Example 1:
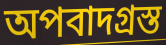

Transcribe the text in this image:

অপবাদগ্রস্ত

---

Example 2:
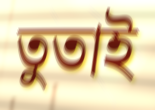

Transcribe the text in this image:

তুতাই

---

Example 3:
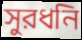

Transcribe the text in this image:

সুরধনি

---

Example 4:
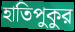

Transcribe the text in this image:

হাতিপুকুর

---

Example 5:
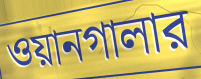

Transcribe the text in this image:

ওয়ানগালার